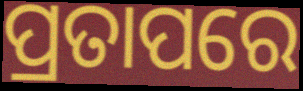
ପ୍ରତାପରେ